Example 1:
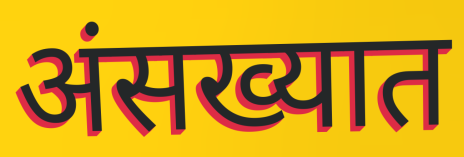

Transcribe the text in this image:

अंसख्यात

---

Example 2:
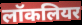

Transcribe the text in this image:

लॉकलियर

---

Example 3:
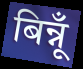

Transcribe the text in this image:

बिन्नूँ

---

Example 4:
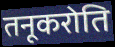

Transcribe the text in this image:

तनूकरोति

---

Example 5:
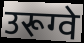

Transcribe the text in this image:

उरूग्वे